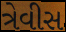
ત્રેવીસ